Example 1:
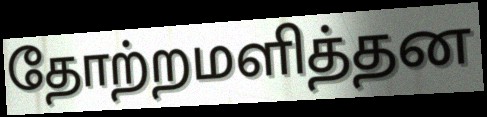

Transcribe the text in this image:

தோற்றமளித்தன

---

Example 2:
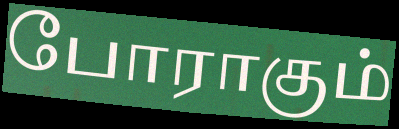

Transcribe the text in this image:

போராகும்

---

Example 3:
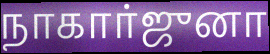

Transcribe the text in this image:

நாகார்ஜுனா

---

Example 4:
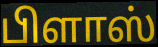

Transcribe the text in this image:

பிளாஸ்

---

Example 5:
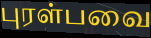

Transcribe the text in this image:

புரள்பவை